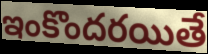
ఇంకొందరయితే